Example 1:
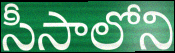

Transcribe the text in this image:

సీసాలోని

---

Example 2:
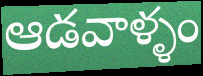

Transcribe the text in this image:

ఆడవాళ్ళం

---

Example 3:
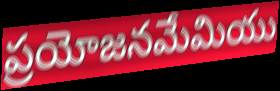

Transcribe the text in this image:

ప్రయోజనమేమియు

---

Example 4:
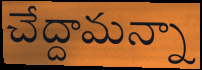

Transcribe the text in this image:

చేద్దామన్నా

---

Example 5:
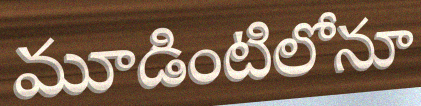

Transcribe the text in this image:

మూడింటిలోనూ